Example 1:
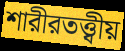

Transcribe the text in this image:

শারীরতত্ত্বীয়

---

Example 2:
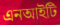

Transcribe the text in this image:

এনআইটি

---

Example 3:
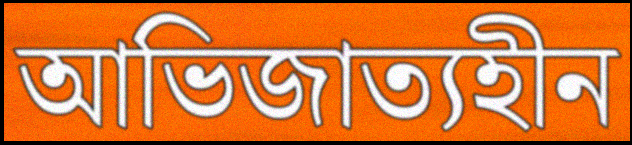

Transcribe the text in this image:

আভিজাত্যহীন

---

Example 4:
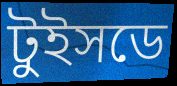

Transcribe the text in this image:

টুইসডে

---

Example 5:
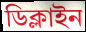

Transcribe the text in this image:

ডিক্লাইন